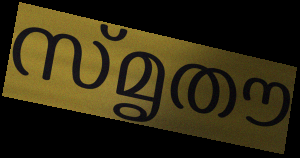
സ്മൃതൗ